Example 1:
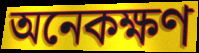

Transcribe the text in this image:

অনেকক্ষণ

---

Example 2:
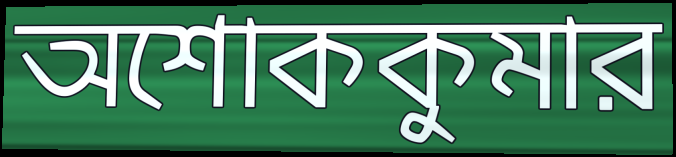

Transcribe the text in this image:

অশোককুমার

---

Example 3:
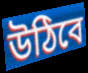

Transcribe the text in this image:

উঠিবে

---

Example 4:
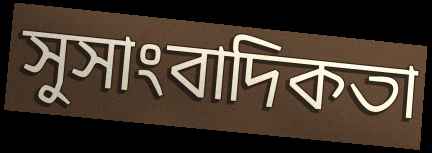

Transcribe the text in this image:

সুসাংবাদিকতা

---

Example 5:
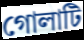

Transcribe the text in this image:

গোলাটি